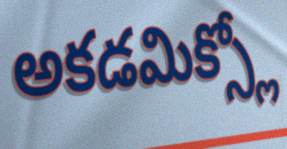
అకడమిక్స్లో